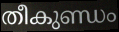
തീകുണ്ഡം